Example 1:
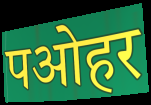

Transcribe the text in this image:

पओहर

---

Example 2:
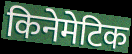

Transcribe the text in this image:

किनेमेटिक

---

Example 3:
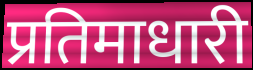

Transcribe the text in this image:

प्रतिमाधारी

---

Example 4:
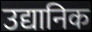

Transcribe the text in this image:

उद्यानिक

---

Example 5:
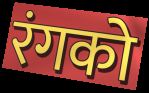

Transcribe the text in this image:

रंगको